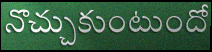
నొచ్చుకుంటుందో